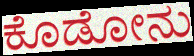
ಕೊಡೋನು